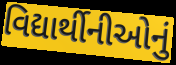
વિદ્યાર્થીનીઓનું